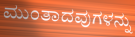
ಮುಂತಾದವುಗಳನ್ನು